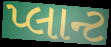
પ્લાન્ટ